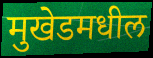
मुखेडमधील